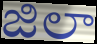
జిలా